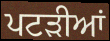
ਪਟਡ਼ੀਆਂ